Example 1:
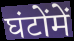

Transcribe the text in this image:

घंटोंमें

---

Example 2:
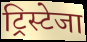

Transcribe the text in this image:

ट्रिस्टेजा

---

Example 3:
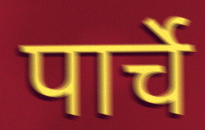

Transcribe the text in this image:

पार्चे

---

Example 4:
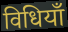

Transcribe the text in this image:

विधियाँ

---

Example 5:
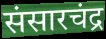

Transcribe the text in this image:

संसारचंद्र